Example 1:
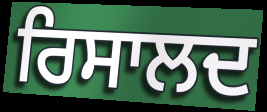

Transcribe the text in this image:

ਰਿਸਾਲਦ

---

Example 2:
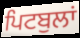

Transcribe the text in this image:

ਪਿਟਬੁਲਾਂ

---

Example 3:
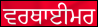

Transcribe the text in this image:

ਵਰਥਾਈਮਰ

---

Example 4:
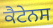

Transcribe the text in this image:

ਕੈਟੇਨਸ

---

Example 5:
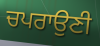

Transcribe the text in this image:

ਚਪਰਾਉਣੀ